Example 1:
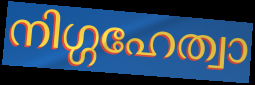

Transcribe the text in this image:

നിഗ്ഗഹേത്വാ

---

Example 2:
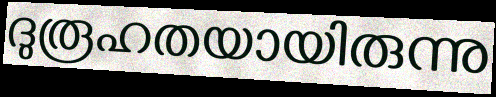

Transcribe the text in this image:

ദുരൂഹതയായിരുന്നു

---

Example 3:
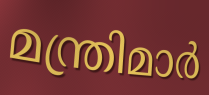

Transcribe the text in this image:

മന്ത്രിമാർ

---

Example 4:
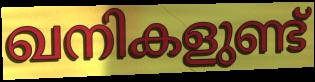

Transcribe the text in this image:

ഖനികളുണ്ട്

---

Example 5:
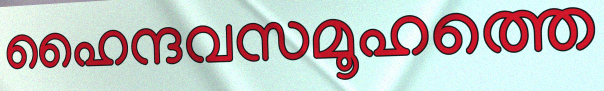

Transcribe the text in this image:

ഹൈന്ദവസമൂഹത്തെ